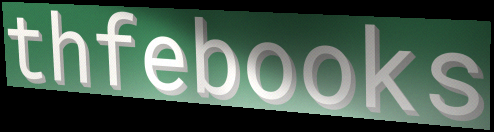
thfebooks